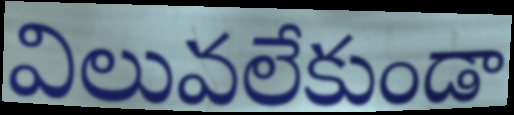
విలువలేకుండా